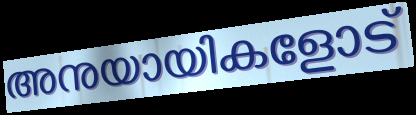
അനുയായികളോട്